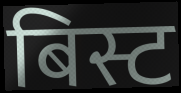
बिस्ट